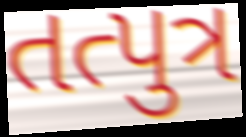
તત્પુત્ર